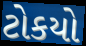
ટોકયો